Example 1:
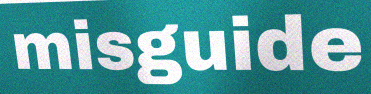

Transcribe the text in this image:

misguide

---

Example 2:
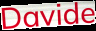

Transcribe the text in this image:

Davide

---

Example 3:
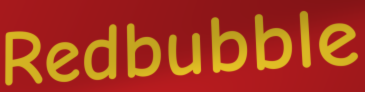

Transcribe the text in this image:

Redbubble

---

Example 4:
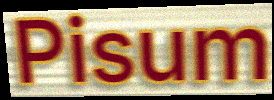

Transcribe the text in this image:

Pisum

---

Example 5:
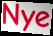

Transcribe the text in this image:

Nye